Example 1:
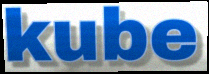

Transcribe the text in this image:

kube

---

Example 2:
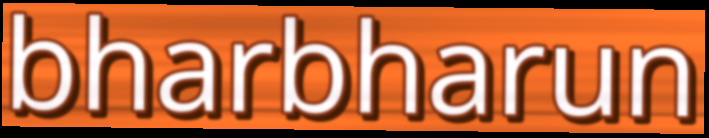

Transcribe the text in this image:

bharbharun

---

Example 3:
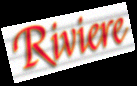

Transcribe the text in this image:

Riviere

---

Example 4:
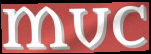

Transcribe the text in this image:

muc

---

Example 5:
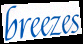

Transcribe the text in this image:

breezes